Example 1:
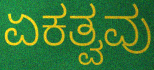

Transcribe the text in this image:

ಏಕತ್ವವು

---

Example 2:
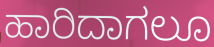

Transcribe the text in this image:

ಹಾರಿದಾಗಲೂ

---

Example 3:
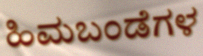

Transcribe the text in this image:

ಹಿಮಬಂಡೆಗಳ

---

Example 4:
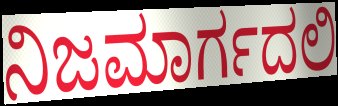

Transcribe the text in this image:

ನಿಜಮಾರ್ಗದಲಿ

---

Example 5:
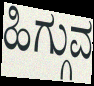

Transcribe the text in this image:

ಹಿಗ್ಗುವ